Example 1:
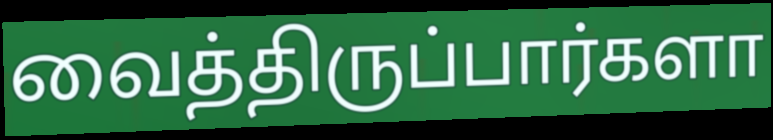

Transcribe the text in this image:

வைத்திருப்பார்களா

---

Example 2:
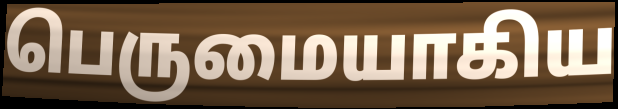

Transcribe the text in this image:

பெருமையாகிய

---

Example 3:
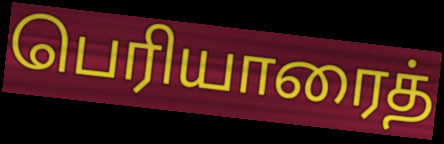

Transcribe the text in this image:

பெரியாரைத்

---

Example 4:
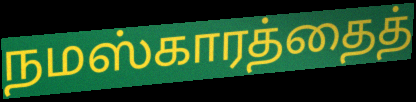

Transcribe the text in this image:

நமஸ்காரத்தைத்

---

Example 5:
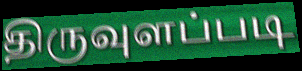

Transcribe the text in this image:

திருவுளப்படி